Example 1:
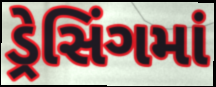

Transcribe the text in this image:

ડ્રેસિંગમાં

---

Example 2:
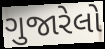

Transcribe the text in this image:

ગુજારેલો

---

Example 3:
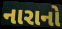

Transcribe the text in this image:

નારાનો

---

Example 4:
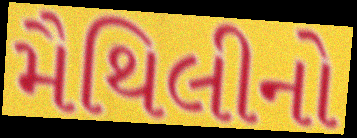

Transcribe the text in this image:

મૈથિલીનો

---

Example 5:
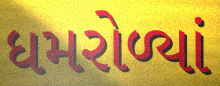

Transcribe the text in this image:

ધમરોળ્યાં